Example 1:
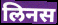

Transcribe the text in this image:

लिनस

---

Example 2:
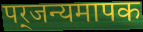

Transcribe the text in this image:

पर्जन्यमापक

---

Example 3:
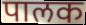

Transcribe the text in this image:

पालक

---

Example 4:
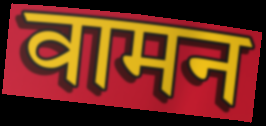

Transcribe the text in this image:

वामन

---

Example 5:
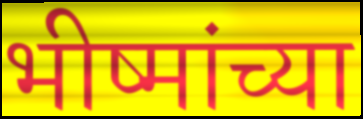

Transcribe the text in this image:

भीष्मांच्या